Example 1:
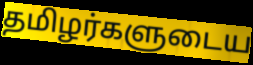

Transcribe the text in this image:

தமிழர்களுடைய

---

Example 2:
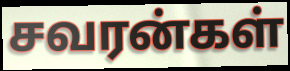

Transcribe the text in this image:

சவரன்கள்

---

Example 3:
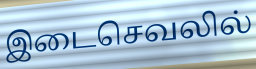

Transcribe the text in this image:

இடைசெவலில்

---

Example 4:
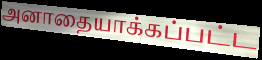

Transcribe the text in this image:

அனாதையாக்கப்பட்ட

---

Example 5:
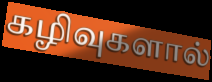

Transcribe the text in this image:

கழிவுகளால்